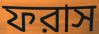
ফরাস